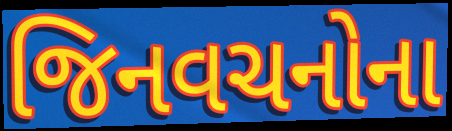
જિનવચનોના